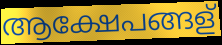
ആക്ഷേപങ്ങള്